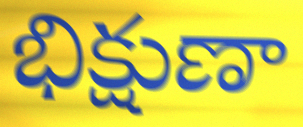
భిక్షుణా